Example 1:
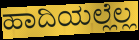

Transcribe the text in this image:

ಹಾದಿಯಲ್ಲೆಲ್ಲ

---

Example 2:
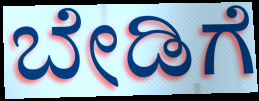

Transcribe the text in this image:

ಬೇಡಿಗೆ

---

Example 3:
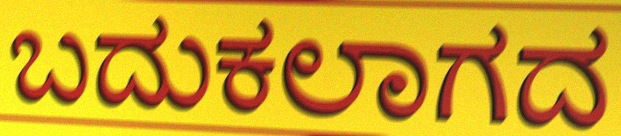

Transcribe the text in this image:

ಬದುಕಲಾಗದ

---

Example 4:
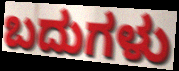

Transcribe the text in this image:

ಬದುಗಳು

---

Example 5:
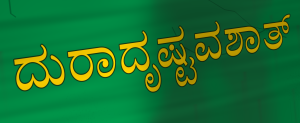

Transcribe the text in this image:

ದುರಾದೃಷ್ಟವಶಾತ್